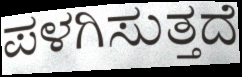
ಪಳಗಿಸುತ್ತದೆ